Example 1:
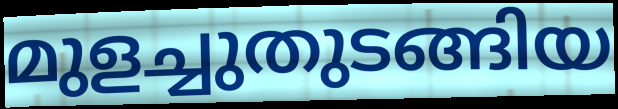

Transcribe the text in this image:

മുളച്ചുതുടങ്ങിയ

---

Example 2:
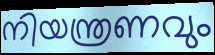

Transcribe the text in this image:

നിയന്ത്രണവും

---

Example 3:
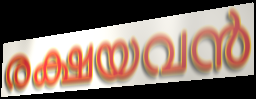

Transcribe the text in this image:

രക്ഷയവൻ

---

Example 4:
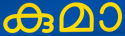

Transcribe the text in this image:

കുമാ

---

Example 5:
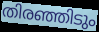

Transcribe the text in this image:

തിരഞ്ഞിടും